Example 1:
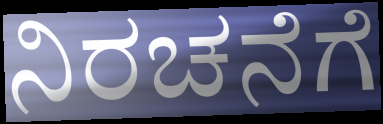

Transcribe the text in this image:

ನಿರಚನೆಗೆ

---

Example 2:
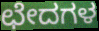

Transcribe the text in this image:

ಛೇದಗಳ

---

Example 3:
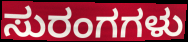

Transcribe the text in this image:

ಸುರಂಗಗಳು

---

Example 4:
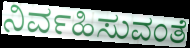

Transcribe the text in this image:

ನಿರ್ವಹಿಸುವಂತೆ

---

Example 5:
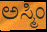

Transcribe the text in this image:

ಅಸ್ಮಿಂ